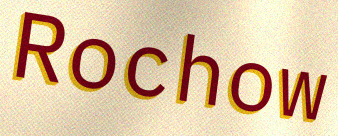
Rochow